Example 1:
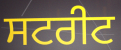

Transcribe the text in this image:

ਸਟਰੀਟ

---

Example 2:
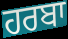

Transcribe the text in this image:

ਹਰਬਾ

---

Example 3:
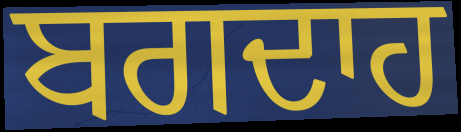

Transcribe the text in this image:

ਬਗਦਾਹ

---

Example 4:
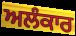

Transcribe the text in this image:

ਅਲੰਕਾਰ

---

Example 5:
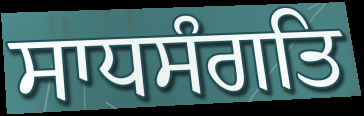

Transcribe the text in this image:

ਸਾਧਸੰਗਤਿ